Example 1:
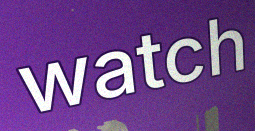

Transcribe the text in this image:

watch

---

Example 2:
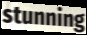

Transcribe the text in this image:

stunning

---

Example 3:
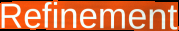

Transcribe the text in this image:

Refinement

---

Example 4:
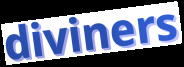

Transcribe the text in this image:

diviners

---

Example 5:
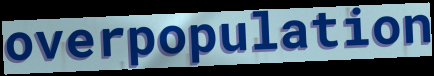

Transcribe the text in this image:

overpopulation